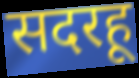
सदरहू